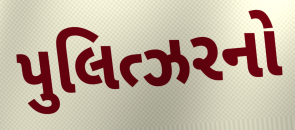
પુલિત્ઝરનો